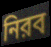
নিরব